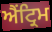
ਐਂਟ੍ਰਿਮ